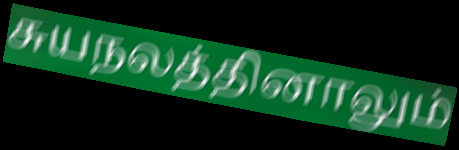
சுயநலத்தினாலும்